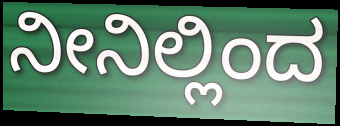
ನೀನಿಲ್ಲಿಂದ